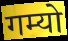
गम्यो